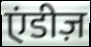
एंडीज़